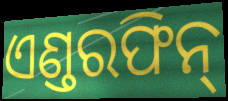
ଏଣ୍ଡରଫିନ୍